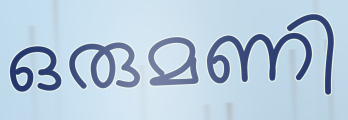
ഒരുമണി